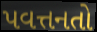
પવત્તનતો